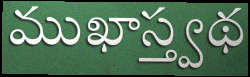
ముఖాస్త్వథ